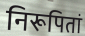
निरूपितां